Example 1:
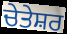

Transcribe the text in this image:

ਚੇਤੇਸ਼ਰ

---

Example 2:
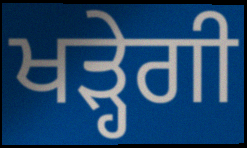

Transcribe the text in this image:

ਖੜ੍ਹੇਗੀ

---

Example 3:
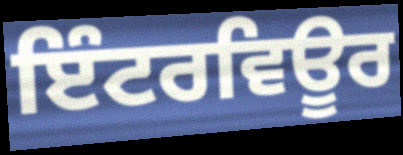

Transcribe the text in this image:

ਇੰਟਰਵਿਊਰ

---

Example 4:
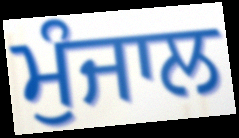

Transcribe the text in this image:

ਮੁੰਜਾਲ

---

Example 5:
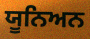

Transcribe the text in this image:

ਯੂਨਿਅਨ